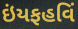
ઇંયફહવિં